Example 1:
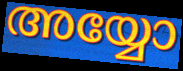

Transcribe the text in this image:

അയ്യോ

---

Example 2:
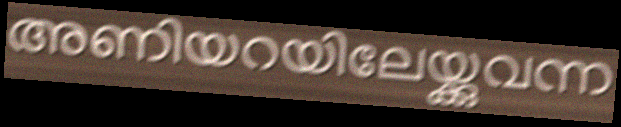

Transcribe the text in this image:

അണിയറയിലേയ്ക്കുവന്ന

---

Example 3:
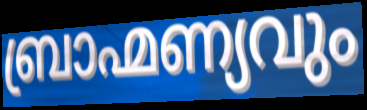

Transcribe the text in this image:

ബ്രാഹ്മണ്യവും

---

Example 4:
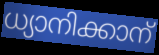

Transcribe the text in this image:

ധ്യാനിക്കാന്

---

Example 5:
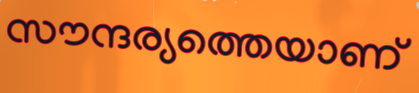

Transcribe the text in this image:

സൗന്ദര്യത്തെയാണ്